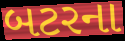
બટરના